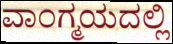
ವಾಂಗ್ಮಯದಲ್ಲಿ